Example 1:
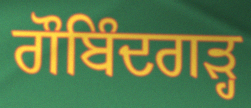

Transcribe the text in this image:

ਗੌਬਿੰਦਗੜ੍ਹ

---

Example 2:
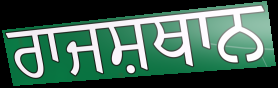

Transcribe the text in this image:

ਰਾਜਸ਼ਥਾਨ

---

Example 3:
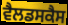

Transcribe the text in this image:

ਵੈਲਡਸਕੈਸ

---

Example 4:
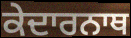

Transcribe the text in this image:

ਕੇਦਾਰਨਾਥ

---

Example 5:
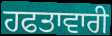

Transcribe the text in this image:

ਹਫਤਾਵਾਰੀ